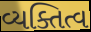
વ્યક્તિત્વ